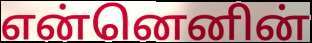
என்னெனின்